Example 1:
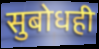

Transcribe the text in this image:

सुबोधही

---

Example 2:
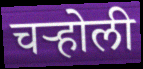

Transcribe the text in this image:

चऱ्होली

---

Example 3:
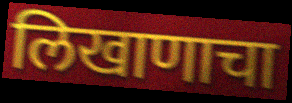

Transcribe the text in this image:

लिखाणाचा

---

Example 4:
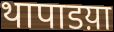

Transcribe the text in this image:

थापाडय़ा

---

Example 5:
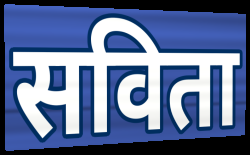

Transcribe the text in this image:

सविता